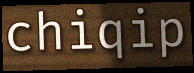
chiqip